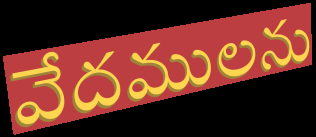
వేదములను